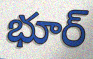
భూర్